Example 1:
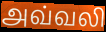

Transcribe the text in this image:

அவ்வலி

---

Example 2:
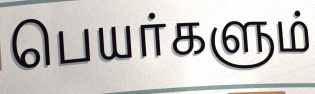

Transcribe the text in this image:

பெயர்களும்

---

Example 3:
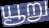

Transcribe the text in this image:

யூறு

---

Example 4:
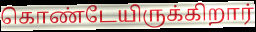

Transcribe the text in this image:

கொண்டேயிருக்கிறார்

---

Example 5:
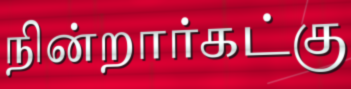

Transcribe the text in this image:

நின்றார்கட்கு